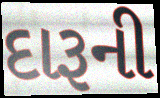
દારૂની